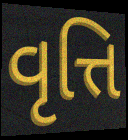
વૃત્તિ